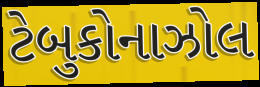
ટેબુકોનાઝોલ